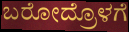
ಬರೋದ್ರೊಳಗೆ